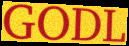
GODL